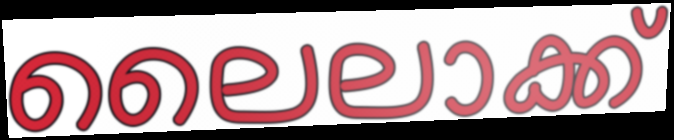
ലൈലാക്ക്